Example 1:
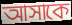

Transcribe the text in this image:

আসাকে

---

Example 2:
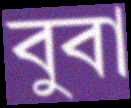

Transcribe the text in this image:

বুবা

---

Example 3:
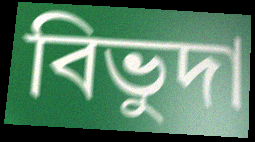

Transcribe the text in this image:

বিভুদা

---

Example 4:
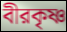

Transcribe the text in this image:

বীরকৃষ্ণ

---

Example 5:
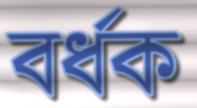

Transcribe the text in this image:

বর্ধক